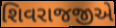
શિવરાજજીએ